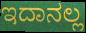
ಇದಾನಲ್ಲ